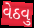
વેઠવુ